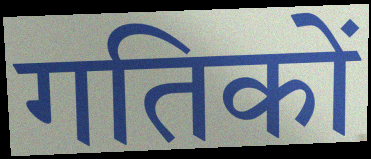
गतिकों